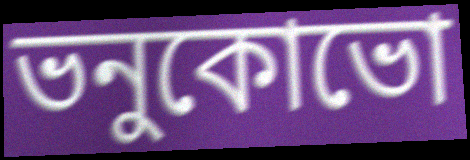
ভনুকোভো